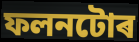
ফলনটোৰ